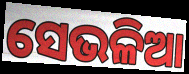
ସେଭଳିଆ